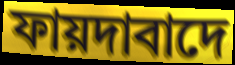
ফায়দাবাদে